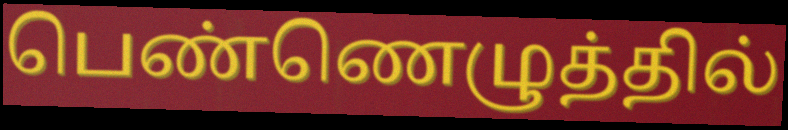
பெண்ணெழுத்தில்